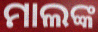
ମାଲଙ୍କ